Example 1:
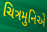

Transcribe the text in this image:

ચિત્રમુનિએ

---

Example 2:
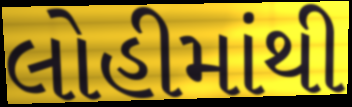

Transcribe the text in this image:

લોહીમાંથી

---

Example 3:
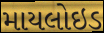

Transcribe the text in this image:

માયલોઇડ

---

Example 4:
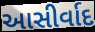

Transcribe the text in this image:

આસીર્વાદ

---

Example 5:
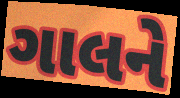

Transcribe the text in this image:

ગાલને